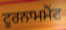
ਟੂਰਨਾਮਮੈਂਟ